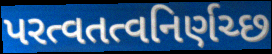
પરત્વતત્વનિર્ણચ્છ